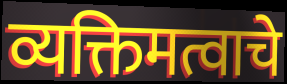
व्यक्तिमत्वाचे